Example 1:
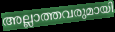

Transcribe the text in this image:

അല്ലാത്തവരുമായി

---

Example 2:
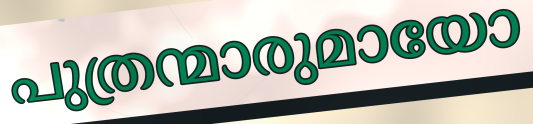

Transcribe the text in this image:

പുത്രന്മാരുമായോ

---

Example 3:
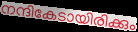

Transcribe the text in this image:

നന്ദികേടായിരിക്കും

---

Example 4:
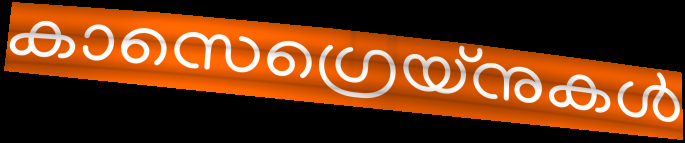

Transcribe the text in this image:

കാസെഗ്രെയ്നുകൾ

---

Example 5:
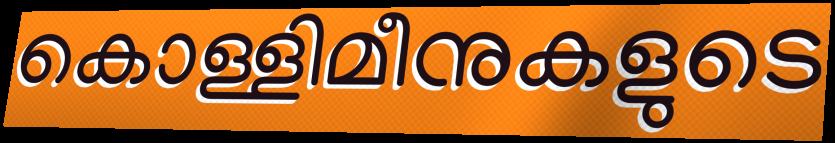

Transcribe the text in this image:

കൊള്ളിമീനുകളുടെ